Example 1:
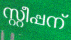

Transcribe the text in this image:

സ്റ്റീപ്പന്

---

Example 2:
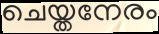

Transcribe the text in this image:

ചെയ്തനേരം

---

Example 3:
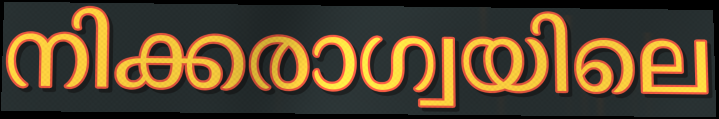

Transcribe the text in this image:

നിക്കരാഗ്വയിലെ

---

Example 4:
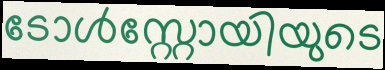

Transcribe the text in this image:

ടോൾസ്റ്റോയിയുടെ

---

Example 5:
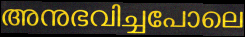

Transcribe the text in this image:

അനുഭവിച്ചപോലെ